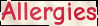
Allergies